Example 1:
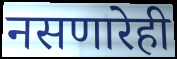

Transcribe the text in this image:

नसणारेही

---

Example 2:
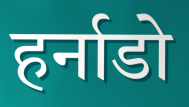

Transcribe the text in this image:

हर्नाडो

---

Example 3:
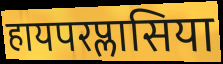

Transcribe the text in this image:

हायपरप्लासिया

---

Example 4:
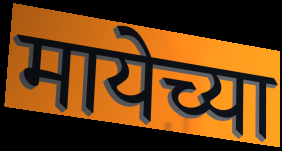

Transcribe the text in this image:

मायेच्या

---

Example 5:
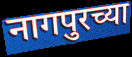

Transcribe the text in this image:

नागपुरच्या